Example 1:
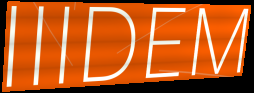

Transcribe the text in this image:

IIIDEM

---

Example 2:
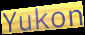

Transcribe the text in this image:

Yukon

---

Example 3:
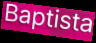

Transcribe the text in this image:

Baptista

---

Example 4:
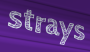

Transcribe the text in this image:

strays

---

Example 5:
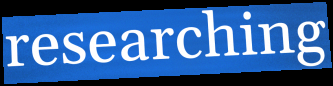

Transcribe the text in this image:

researching